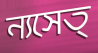
ন্যসেত্